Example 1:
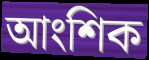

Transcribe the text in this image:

আংশিক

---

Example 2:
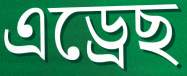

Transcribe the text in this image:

এড্ৰেছ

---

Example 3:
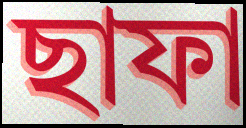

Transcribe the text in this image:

ছাফা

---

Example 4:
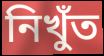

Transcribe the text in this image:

নিখুঁত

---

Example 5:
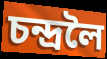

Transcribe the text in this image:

চন্দ্ৰলৈ